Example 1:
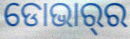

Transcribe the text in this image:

ଡୋଭାର୍‌ର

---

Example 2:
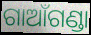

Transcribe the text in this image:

ଗାଆଁଗଣ୍ଡା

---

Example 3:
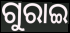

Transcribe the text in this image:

ଗୁରାଇ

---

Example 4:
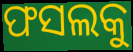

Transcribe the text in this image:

ଫସଲକୁ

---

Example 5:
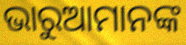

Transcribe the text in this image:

ଭାରୁଆମାନଙ୍କ